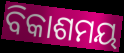
ବିକାଶମୟ